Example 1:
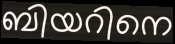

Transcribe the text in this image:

ബിയറിനെ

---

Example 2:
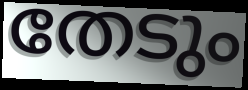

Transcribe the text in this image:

തേടും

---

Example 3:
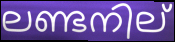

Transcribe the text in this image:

ലണ്ടനില്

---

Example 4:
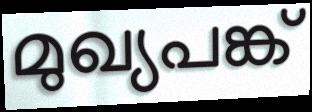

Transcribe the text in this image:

മുഖ്യപങ്ക്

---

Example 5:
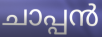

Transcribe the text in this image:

ചാപ്പൻ